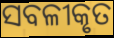
ସବଳୀକୃତ